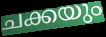
ചക്കയും